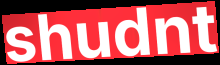
shudnt